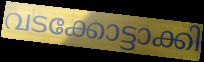
വടക്കോട്ടാക്കി